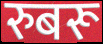
रुबरू